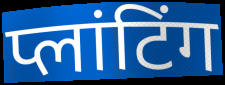
प्लांटिंग